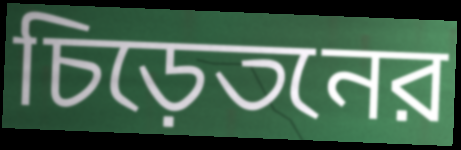
চিড়েতনের